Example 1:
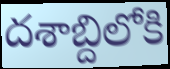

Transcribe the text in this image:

దశాబ్దిలోకి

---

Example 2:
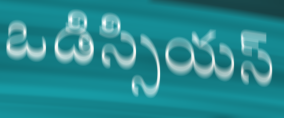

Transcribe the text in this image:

ఒడిస్సియస్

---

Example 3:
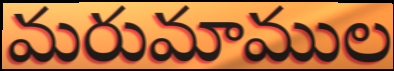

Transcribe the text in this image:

మరుమాముల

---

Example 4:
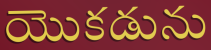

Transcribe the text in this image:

యొకడును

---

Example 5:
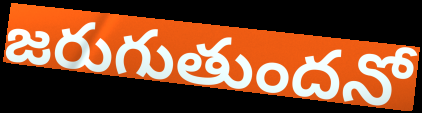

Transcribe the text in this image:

జరుగుతుందనో